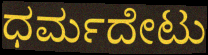
ಧರ್ಮದೇಟು